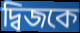
দ্বিজকে